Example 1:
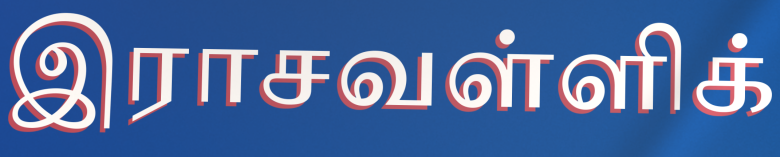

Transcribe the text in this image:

இராசவள்ளிக்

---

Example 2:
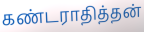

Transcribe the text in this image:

கண்டராதித்தன்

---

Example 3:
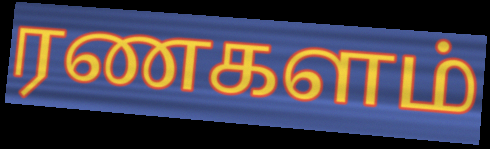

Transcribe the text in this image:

ரணகளம்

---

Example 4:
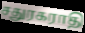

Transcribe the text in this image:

சதுரகராதி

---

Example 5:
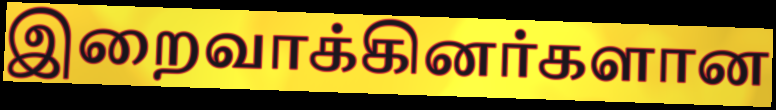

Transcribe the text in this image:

இறைவாக்கினர்களான